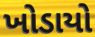
ખોડાયો